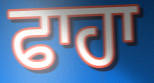
ਫਾਹਾ